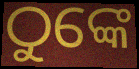
ଠୁଙ୍କେ